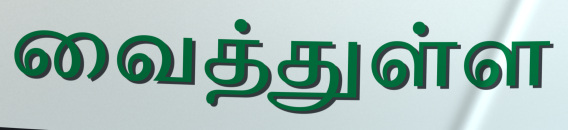
வைத்துள்ள